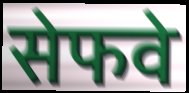
सेफवे